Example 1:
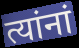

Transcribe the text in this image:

त्यांनां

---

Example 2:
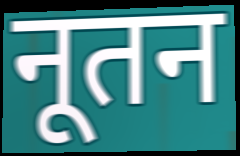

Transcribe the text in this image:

नूतन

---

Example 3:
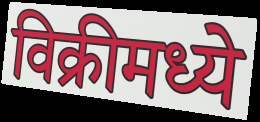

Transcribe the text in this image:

विक्रीमध्ये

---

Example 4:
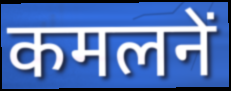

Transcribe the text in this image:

कमलनें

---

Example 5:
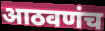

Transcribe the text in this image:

आठवणंच